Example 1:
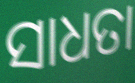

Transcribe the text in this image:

ସାଧତା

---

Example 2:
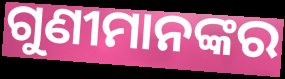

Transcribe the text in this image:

ଗୁଣୀମାନଙ୍କର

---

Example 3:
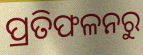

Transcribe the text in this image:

ପ୍ରତିଫଳନରୁ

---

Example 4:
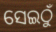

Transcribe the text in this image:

ସେଇଠୁଁ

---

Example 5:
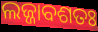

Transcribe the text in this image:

ଲଜ୍ଜାବଶତଃ